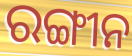
ରଙ୍ଗୀନ